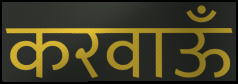
करवाऊँ